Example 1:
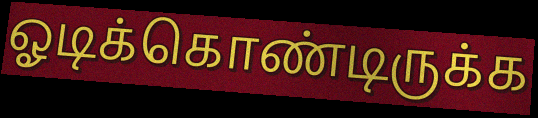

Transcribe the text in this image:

ஓடிக்கொண்டிருக்க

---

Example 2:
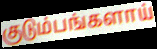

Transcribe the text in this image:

குடும்பங்களாய்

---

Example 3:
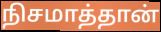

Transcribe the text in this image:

நிசமாத்தான்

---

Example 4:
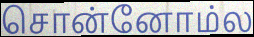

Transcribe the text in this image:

சொன்னோம்ல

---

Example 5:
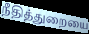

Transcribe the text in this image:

நீதித்துறையை